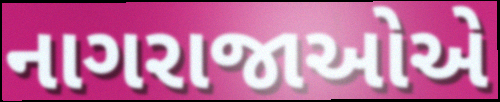
નાગરાજાઓએ